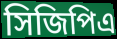
সিজিপিএ